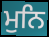
ਮੁਨਿ